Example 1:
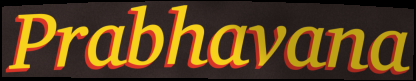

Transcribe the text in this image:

Prabhavana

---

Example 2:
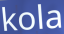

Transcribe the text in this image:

kola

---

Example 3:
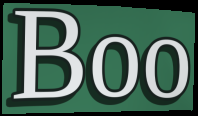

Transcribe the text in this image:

Boo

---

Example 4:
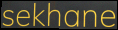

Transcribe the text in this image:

sekhane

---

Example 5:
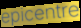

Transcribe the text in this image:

epicentre